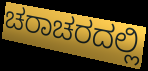
ಚರಾಚರದಲ್ಲಿ